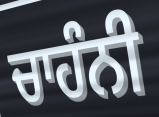
ਚਾਹੰਨੀ